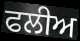
ਫਲੀਅ